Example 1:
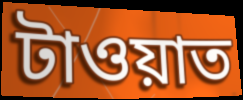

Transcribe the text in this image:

টাওয়াত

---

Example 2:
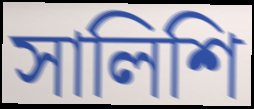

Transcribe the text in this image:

সালিশি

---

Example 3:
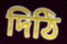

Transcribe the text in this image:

দিঠি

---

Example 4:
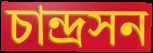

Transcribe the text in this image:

চান্দ্রসন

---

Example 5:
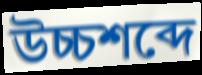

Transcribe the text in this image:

উচ্চশব্দে